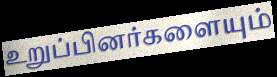
உறுப்பினர்களையும்